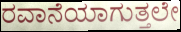
ರವಾನೆಯಾಗುತ್ತಲೇ